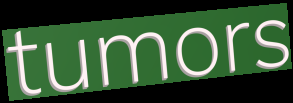
tumors